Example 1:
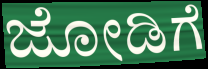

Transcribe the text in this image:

ಜೋಡಿಗೆ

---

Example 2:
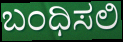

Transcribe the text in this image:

ಬಂಧಿಸಲಿ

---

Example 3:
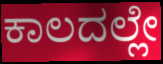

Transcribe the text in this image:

ಕಾಲದಲ್ಲೇ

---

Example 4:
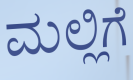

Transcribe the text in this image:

ಮಲ್ಲಿಗೆ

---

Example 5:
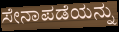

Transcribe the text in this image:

ಸೇನಾಪಡೆಯನ್ನು